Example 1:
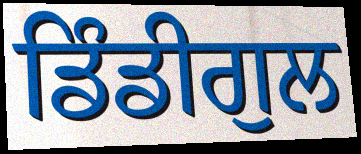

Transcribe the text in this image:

ਡਿੰਡੀਗੁਲ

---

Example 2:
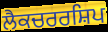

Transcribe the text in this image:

ਲੈਕਚਰਰਸ਼ਿਪ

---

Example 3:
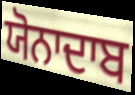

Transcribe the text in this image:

ਯੋਨਾਦਾਬ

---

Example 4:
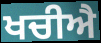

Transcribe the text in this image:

ਖਚੀਐ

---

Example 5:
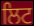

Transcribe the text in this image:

ਲਿਟ